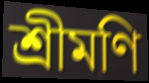
শ্রীমণি